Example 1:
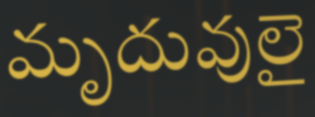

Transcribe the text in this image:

మృదువులై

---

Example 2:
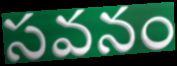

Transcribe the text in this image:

సవనం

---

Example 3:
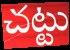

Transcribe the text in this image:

చట్టు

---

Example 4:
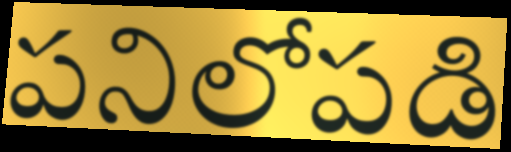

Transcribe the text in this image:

పనిలోపడి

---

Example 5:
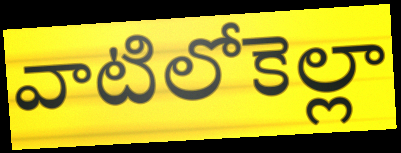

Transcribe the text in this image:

వాటిలోకెల్లా